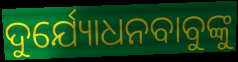
ଦୁର୍ଯ୍ୟୋଧନବାବୁଙ୍କୁ